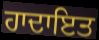
ਹਾਦਾਇਤ